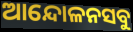
ଆନ୍ଦୋଳନସବୁ